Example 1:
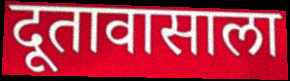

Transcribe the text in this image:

दूतावासाला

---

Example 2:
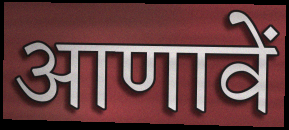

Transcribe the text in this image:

आणावें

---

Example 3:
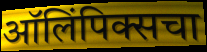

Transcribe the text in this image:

ऑलिंपिक्सचा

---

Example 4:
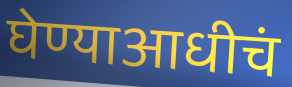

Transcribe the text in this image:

घेण्याआधीचं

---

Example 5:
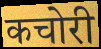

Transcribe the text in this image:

कचोरी